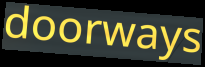
doorways